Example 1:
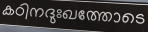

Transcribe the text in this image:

കഠിനദുഃഖത്തോടെ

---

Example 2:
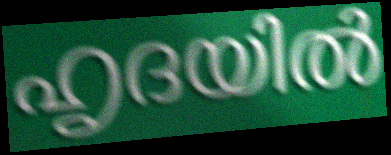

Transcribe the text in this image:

ഹൃദയിൽ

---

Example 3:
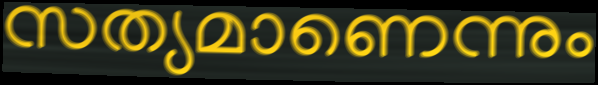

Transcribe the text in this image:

സത്യമാണെന്നും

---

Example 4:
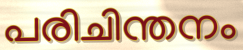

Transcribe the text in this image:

പരിചിന്തനം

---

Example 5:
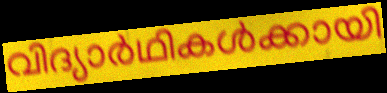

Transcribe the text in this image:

വിദ്യാർഥികൾക്കായി